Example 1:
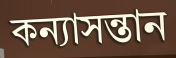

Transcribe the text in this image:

কন্যাসন্তান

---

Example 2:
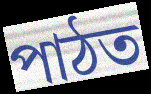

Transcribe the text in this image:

পাঠত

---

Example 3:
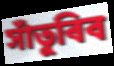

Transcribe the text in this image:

সাঁতুৰিব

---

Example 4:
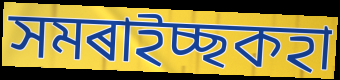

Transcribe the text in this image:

সমৰাইচ্ছকহা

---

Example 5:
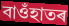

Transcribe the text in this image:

বাওঁহাতৰ